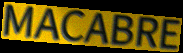
MACABRE